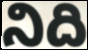
నిది